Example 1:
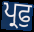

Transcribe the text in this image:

ਪ੍ਰਫੁ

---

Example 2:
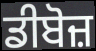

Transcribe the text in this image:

ਡੀਬੋਜ਼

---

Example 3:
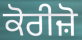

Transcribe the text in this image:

ਕੋਰੀਜ਼ੋ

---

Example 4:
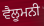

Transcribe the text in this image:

ਵੈਲੂਮਨੀ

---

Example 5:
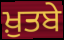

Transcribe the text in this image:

ਖ਼ੁਤਬੇ